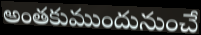
అంతకుముందునుంచే